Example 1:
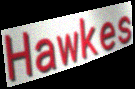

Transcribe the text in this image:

Hawkes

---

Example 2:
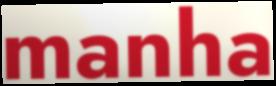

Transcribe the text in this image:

manha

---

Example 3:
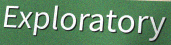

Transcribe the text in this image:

Exploratory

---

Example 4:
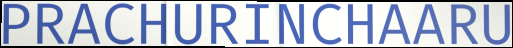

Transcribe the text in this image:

PRACHURINCHAARU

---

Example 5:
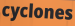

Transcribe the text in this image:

cyclones